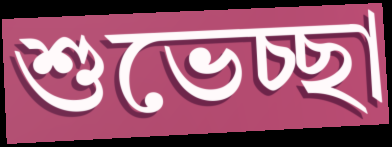
শুভেচ্ছা